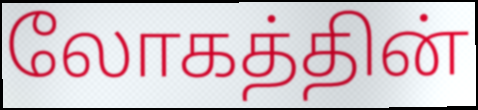
லோகத்தின்